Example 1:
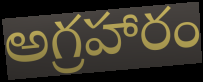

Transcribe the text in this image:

అగ్రహారం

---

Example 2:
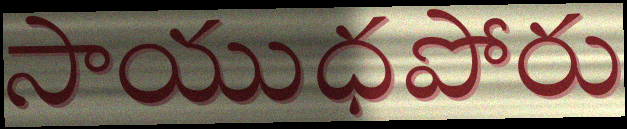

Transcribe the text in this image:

సాయుధపోరు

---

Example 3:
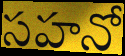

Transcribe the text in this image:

సహనో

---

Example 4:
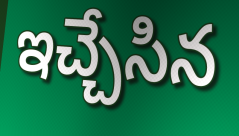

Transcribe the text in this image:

ఇచ్చేసిన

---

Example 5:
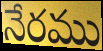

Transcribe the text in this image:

నేరము